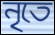
নৃতে